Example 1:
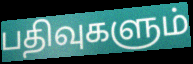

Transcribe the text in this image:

பதிவுகளும்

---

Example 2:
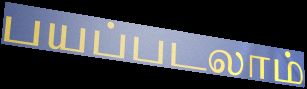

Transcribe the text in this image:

பயப்படலாம்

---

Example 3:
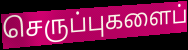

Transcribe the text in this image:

செருப்புகளைப்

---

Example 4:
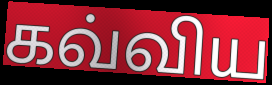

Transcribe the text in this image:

கவ்விய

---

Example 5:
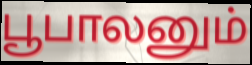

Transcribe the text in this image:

பூபாலனும்